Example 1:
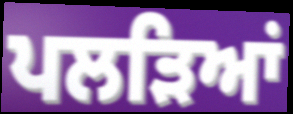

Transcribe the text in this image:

ਪਲੜਿਆਂ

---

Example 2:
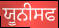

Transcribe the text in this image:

ਯੂਨੀਸਫ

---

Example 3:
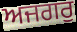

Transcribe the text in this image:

ਅਜਗਰੁ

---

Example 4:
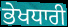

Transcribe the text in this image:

ਭੇਖਧਾਰੀ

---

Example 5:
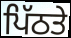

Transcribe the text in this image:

ਪਿੱਠਤੇ